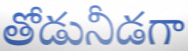
తోడునీడగా